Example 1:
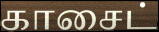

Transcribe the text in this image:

காசைட்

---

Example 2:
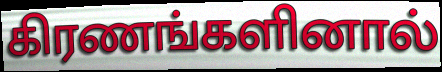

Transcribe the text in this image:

கிரணங்களினால்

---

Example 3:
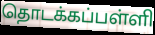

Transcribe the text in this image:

தொடக்கப்பள்ளி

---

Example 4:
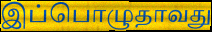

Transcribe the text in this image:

இப்பொழுதாவது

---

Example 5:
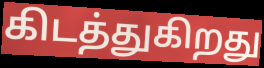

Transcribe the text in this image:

கிடத்துகிறது